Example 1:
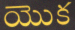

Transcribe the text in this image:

యొక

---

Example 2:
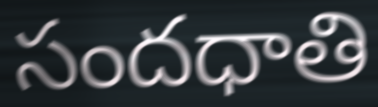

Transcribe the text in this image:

సందధాతి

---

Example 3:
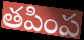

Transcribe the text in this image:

తపింప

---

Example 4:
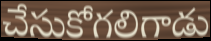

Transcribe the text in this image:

చేసుకోగలిగాడు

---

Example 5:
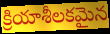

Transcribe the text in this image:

క్రియాశీలకమైన